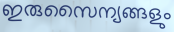
ഇരുസൈന്യങ്ങളും